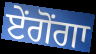
ਏਂਗੋਂਗਾ